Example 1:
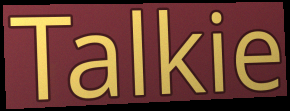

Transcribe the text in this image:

Talkie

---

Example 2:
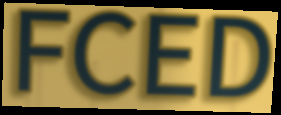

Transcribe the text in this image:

FCED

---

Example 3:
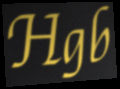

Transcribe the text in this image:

Hgb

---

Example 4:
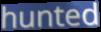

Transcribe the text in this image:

hunted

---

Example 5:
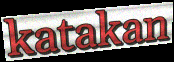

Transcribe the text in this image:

katakan